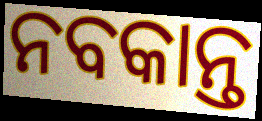
ନବକାନ୍ତ